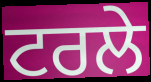
ਟਰਲੇ